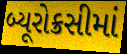
બ્યૂરોક્રસીમાં